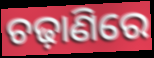
ଚଢ଼ାଣିରେ